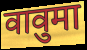
वावुमा